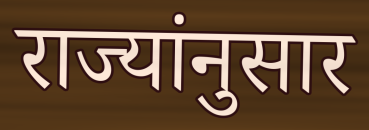
राज्यांनुसार